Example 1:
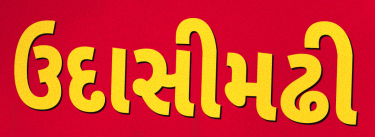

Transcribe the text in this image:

ઉદાસીમઢી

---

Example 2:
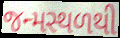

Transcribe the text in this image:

જન્મસ્થળથી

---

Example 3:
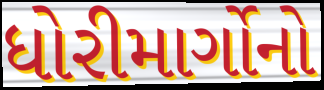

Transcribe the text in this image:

ધોરીમાર્ગોનો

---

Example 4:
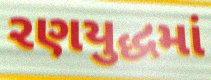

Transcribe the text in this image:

રણયુદ્ધમાં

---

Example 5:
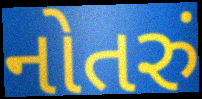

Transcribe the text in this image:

નોતરું